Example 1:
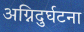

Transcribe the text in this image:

अग्निदुर्घटना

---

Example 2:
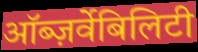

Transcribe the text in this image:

ऑब्ज़र्वेबिलिटी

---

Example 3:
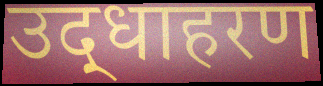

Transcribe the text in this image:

उद्धाहरण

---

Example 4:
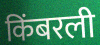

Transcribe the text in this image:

किंबरली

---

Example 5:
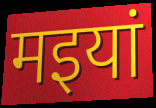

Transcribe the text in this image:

मइयां